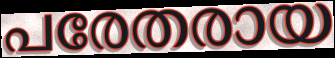
പരേതരായ